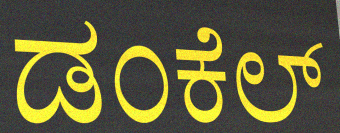
ಡಂಕೆಲ್